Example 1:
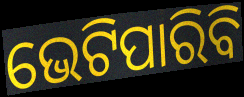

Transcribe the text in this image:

ଭେଟିପାରିବି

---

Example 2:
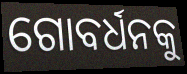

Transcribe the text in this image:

ଗୋବର୍ଧନକୁ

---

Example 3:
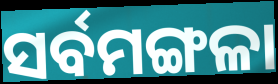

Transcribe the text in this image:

ସର୍ବମଙ୍ଗଳା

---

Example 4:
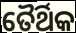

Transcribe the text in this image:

ତୈର୍ଥିକ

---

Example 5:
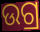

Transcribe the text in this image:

ଉଗ୍ର